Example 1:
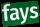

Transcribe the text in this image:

fays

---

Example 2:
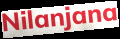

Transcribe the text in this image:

Nilanjana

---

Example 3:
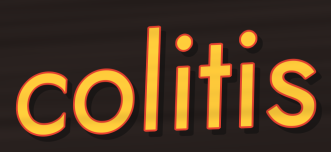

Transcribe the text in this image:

colitis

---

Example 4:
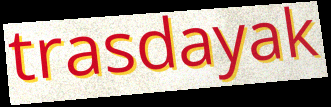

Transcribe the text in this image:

trasdayak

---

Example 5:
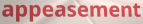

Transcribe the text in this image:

appeasement